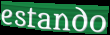
estando